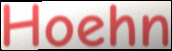
Hoehn